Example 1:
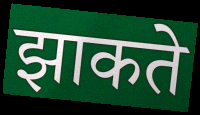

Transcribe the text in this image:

झाकते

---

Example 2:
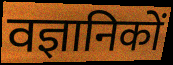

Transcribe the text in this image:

वज्ञानिकों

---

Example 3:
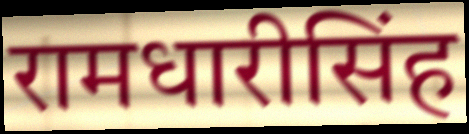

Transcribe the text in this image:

रामधारीसिंह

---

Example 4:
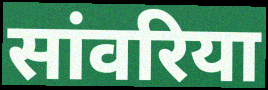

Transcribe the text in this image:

सांवरिया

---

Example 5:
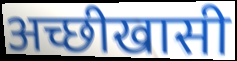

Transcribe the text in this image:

अच्छीखासी